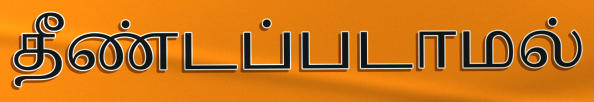
தீண்டப்படாமல்